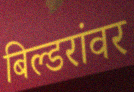
बिल्डरांवर